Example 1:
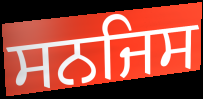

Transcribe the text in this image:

ਸਨਜਿਸ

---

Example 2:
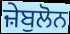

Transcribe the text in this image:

ਜ਼ੇਬੁਲੋਨ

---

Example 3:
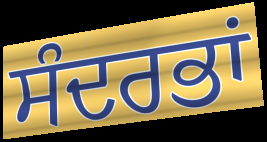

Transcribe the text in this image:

ਸੰਦਰਭਾਂ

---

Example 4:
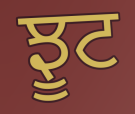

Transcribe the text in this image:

ਝੂਟ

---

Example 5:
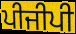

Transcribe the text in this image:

ਪੀਜੀਪੀ